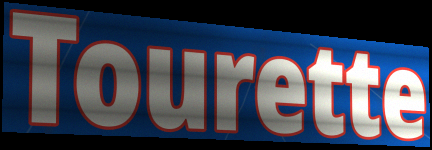
Tourette